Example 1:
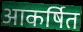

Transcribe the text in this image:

आकर्षित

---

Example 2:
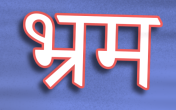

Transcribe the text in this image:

भ्रम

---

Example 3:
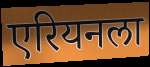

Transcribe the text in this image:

एरियनला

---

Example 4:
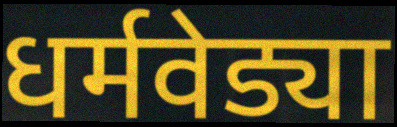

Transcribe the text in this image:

धर्मवेड्या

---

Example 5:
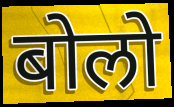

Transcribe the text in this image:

बोलो